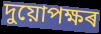
দুয়োপক্ষৰ